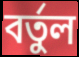
বর্তুল